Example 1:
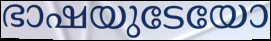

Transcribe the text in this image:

ഭാഷയുടേയോ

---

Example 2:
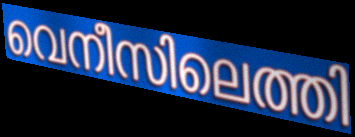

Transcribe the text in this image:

വെനീസിലെത്തി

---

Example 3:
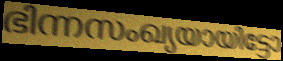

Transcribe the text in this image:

ഭിന്നസംഖ്യയായിട്ടോ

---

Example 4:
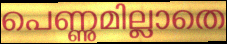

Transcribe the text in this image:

പെണ്ണുമില്ലാതെ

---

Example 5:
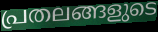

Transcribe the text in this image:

പ്രതലങ്ങളുടെ